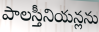
పాలస్తీనియన్లను